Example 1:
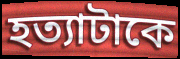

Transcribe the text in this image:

হত্যাটাকে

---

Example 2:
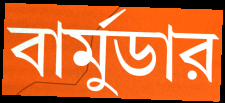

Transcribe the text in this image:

বার্মুডার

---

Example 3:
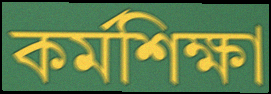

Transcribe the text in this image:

কর্মশিক্ষা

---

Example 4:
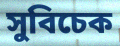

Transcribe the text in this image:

সুবিচেক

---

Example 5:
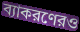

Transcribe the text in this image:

ব্যাকরণেরও